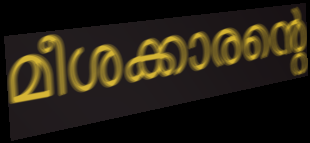
മീശക്കാരന്റെ